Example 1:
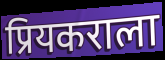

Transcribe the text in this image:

प्रियकराला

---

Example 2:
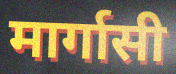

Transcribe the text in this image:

मार्गासी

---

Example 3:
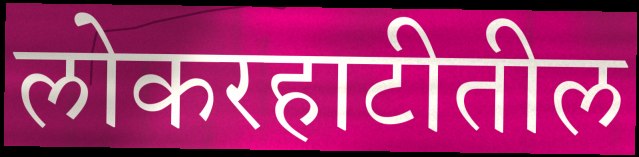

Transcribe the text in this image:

लोकरहाटीतील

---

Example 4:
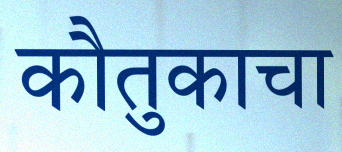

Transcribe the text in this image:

कौतुकाचा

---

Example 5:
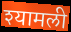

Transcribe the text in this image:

श्यामली